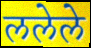
ललेले